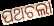
ପଥଚଲା